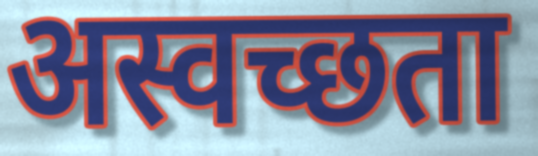
अस्वच्छता